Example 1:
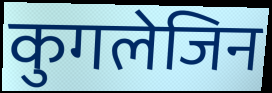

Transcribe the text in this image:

कुगलेजिन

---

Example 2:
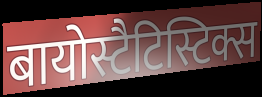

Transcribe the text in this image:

बायोस्टैटिस्टिक्स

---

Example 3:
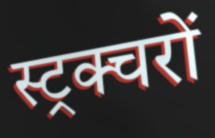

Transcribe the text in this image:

स्ट्रक्चरों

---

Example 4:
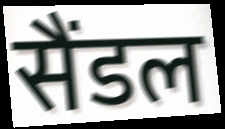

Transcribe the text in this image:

सैंडल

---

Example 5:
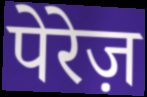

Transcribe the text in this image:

पेरेज़